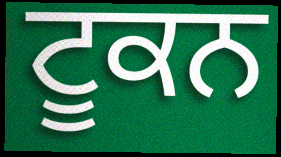
ਟੂਕਨ